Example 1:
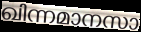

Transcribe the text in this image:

ഖിന്നമാനസാ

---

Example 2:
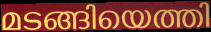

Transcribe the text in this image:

മടങ്ങിയെത്തി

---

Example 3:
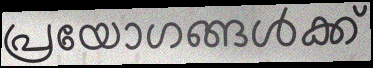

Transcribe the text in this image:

പ്രയോഗങ്ങൾക്ക്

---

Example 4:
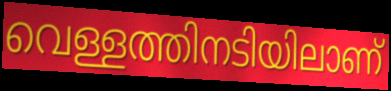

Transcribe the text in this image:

വെള്ളത്തിനടിയിലാണ്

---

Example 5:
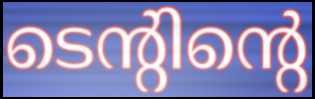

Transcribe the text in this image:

ടെന്റിന്റെ